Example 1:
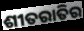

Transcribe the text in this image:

ଶୀତରାତିର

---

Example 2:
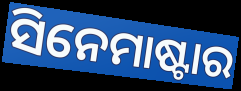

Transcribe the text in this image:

ସିନେମାଷ୍ଟାର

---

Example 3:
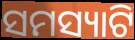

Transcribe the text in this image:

ସମସ୍ୟାଟି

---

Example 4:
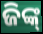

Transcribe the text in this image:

ଜିଙ୍କ୍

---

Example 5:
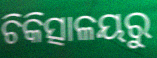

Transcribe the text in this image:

ଚିକିତ୍ସାଳୟରୁ